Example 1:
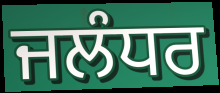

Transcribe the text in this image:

ਜਲੰਧਰ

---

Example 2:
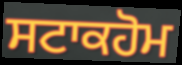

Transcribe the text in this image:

ਸਟਾਕਹੋਮ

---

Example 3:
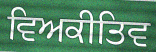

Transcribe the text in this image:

ਵਿਅਕੀਤਿਵ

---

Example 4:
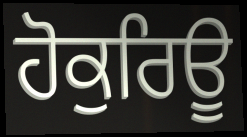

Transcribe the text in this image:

ਹੋਕੁਰਿਊ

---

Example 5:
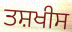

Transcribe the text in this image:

ਤਸ਼ਖੀਸ